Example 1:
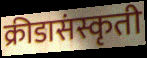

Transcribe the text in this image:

क्रीडासंस्कृती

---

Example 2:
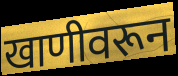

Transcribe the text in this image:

खाणीवरून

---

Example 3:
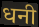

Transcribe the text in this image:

धनी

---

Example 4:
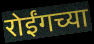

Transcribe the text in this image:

रोईंगच्या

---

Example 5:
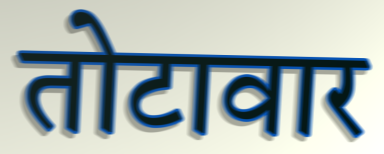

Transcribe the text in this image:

तोटावार